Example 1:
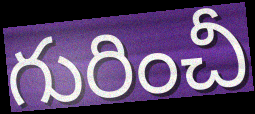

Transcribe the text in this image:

గురించీ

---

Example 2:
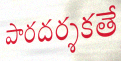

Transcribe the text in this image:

పారదర్శకతే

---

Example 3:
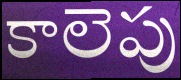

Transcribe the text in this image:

కాలెపు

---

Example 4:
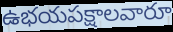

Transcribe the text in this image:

ఉభయపక్షాలవారూ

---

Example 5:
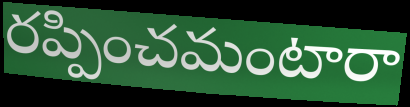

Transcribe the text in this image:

రప్పించమంటారా